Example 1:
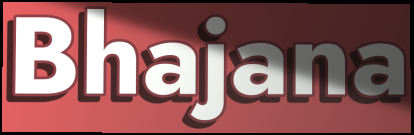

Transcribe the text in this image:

Bhajana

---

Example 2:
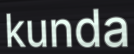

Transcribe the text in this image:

kunda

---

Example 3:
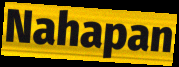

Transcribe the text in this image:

Nahapan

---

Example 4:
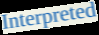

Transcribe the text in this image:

Interpreted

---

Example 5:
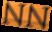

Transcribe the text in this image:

NN